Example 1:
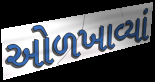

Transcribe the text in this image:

ઓળખાવ્યાં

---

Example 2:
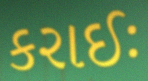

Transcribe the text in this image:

કરાઈઃ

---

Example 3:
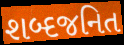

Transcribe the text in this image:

શબ્દજનિત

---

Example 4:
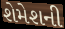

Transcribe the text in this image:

શેમેશની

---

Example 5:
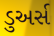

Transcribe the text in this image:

ડુઅર્સ